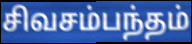
சிவசம்பந்தம்